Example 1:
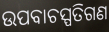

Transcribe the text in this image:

ଉପବାଚସ୍ପତିଗଣ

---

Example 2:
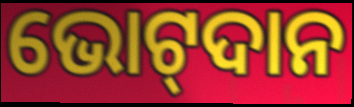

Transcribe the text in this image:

ଭୋଟ୍‌ଦାନ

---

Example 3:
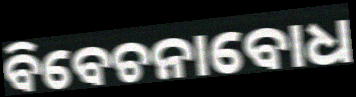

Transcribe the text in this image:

ବିବେଚନାବୋଧ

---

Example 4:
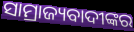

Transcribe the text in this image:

ସାମ୍ରାଜ୍ୟବାଦୀଙ୍କର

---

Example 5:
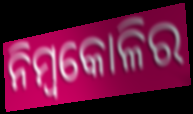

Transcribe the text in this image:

ନିମ୍ବକୋଳିର